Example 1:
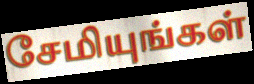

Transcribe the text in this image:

சேமியுங்கள்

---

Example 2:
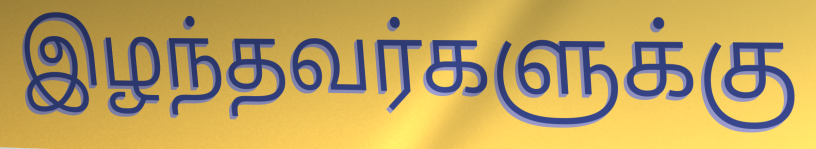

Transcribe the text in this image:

இழந்தவர்களுக்கு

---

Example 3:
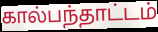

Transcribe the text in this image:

கால்பந்தாட்டம்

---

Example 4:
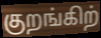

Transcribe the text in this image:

குறங்கிற்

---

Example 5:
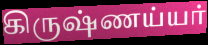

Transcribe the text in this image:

கிருஷ்ணய்யர்